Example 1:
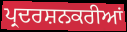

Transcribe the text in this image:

ਪ੍ਰਦਰਸ਼ਨਕਰੀਆਂ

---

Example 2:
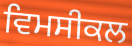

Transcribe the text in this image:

ਵਿਮਸੀਕਲ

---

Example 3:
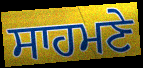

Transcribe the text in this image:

ਸਾਹਮਣੇ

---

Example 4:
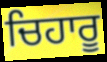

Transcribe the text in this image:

ਚਿਹਾਰੂ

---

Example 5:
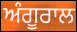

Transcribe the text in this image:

ਅੰਗੂਰਾਲ